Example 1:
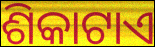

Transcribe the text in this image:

ଶିକାଟାଏ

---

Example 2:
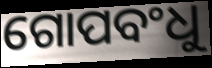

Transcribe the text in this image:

ଗୋପବଂଧୁ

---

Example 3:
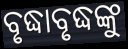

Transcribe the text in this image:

ବୃଦ୍ଧାବୃଦ୍ଧଙ୍କୁ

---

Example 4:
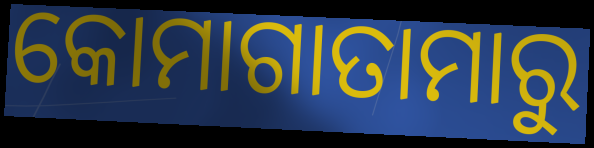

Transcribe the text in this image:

କୋମାଗାତାମାରୁ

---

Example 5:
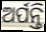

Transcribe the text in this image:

ଅର୍ପନ୍ତି